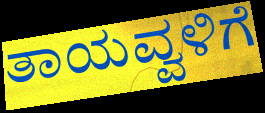
ತಾಯವ್ವಳಿಗೆ